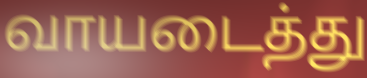
வாயடைத்து